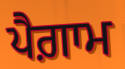
ਪੈਗ਼ਾਮ